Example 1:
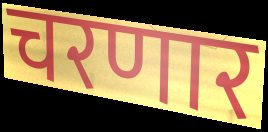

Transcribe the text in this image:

चरणार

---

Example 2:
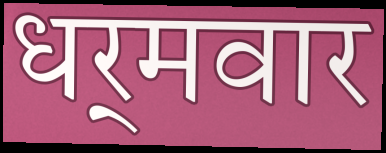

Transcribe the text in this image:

धर्मवार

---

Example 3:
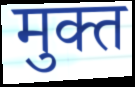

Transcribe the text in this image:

मुक्त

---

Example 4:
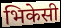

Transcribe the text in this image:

भिकेसी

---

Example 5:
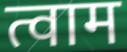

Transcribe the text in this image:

त्वाम